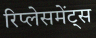
रिप्लेसमेंट्स